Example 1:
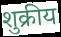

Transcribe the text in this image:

शुक्रीय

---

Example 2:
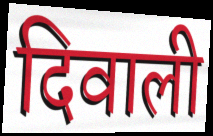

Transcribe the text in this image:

दिवाली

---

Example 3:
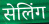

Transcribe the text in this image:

सेलिंग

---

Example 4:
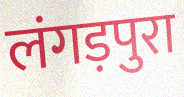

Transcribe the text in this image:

लंगड़पुरा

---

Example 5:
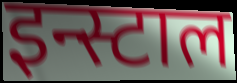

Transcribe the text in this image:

इन्स्टाल